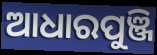
ଆଧାରପୁଞ୍ଜି